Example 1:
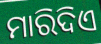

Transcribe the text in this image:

ମାରିଦିଏ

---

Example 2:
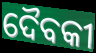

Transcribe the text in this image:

ଦୈବକୀ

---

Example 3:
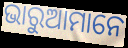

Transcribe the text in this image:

ଭାରୁଆମାନେ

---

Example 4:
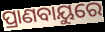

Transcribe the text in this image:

ପ୍ରାଣବାୟୁରେ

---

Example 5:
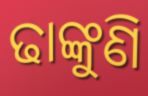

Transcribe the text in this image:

ଢାଙ୍କୁଣି